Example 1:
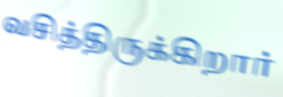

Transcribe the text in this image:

வசித்திருக்கிறார்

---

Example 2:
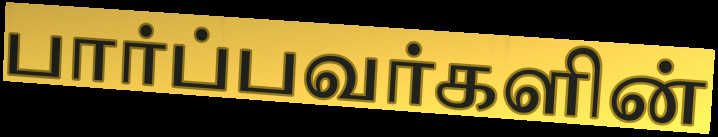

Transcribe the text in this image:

பார்ப்பவர்களின்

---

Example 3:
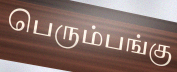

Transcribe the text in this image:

பெரும்பங்கு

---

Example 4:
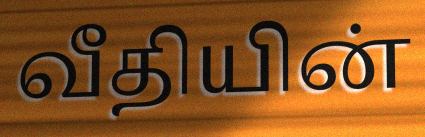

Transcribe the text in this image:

வீதியின்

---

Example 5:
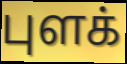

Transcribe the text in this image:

புளக்